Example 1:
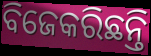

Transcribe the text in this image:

ବିଜେକରିଛନ୍ତି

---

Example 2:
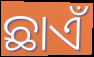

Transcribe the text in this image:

ଛାଏଁ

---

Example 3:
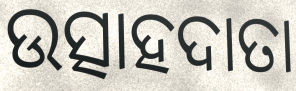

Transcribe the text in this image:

ଉତ୍ସାହଦାତା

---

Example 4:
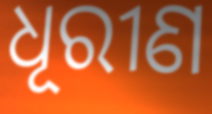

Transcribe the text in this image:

ଧୂରୀଣ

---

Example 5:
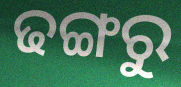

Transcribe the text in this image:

ଢଙ୍ଗରୁ